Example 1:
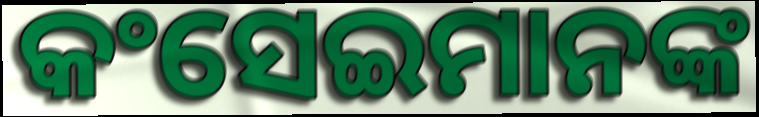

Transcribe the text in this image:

କଂସେଇମାନଙ୍କ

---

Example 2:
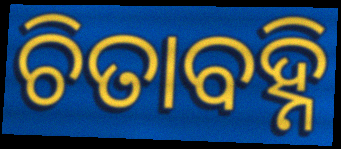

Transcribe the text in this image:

ଚିତାବହ୍ନି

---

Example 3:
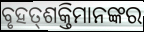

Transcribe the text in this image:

ବୃହତ୍‍ଶକ୍ତିମାନଙ୍କର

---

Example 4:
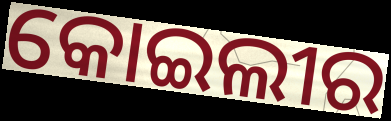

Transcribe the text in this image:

କୋଇଲୀର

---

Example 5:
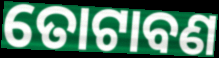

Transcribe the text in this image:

ତୋଟାବଣ